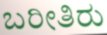
ಬರೀತಿರು